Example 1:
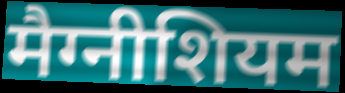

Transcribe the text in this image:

मैग्नीशियम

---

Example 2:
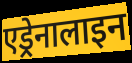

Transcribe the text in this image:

एड्रेनालाइन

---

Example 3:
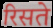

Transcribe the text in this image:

रिसते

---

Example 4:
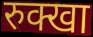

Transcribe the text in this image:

रुक्खा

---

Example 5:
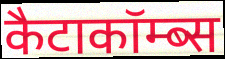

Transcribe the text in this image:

कैटाकॉम्ब्स